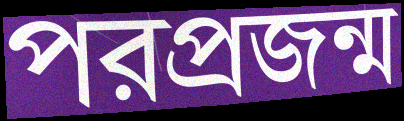
পরপ্রজন্ম